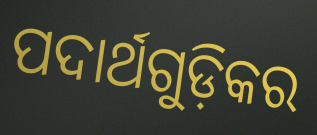
ପଦାର୍ଥଗୁଡ଼ିକର